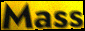
Mass